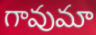
గావుమా